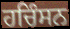
ਹਚਿੰਸਨ